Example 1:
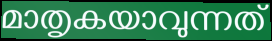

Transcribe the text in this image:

മാതൃകയാവുന്നത്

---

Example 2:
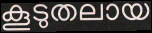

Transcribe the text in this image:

കൂടുതലായ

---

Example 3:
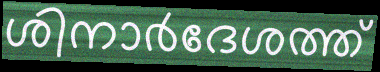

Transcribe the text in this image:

ശിനാർദേശത്ത്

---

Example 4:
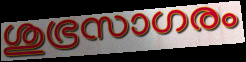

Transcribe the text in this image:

ശുഭ്രസാഗരം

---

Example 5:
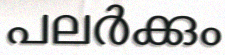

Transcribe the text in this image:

പലർക്കും